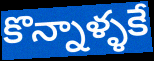
కొన్నాళ్ళకే